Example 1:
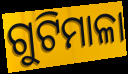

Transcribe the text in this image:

ଗୁଟିମାଳା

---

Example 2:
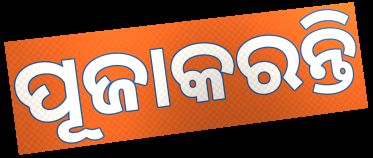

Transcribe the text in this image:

ପୂଜାକରନ୍ତି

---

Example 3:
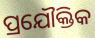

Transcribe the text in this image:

ପ୍ରଯୌକ୍ତିକ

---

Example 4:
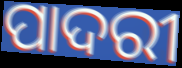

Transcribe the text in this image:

ପାଦରୀ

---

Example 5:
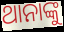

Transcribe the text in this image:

ଥାନାଙ୍କୁ